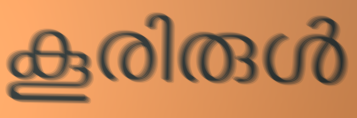
കൂരിരുൾ